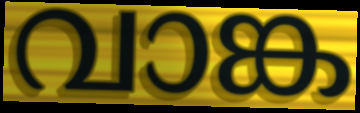
വാങ്ക